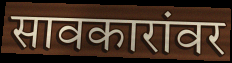
सावकारांवर